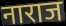
नाराज